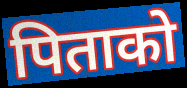
पिताको